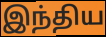
இந்திய